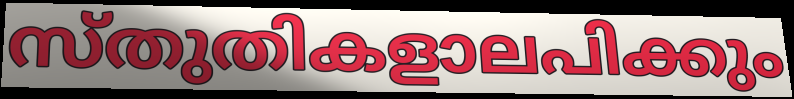
സ്തുതികളാലപിക്കും